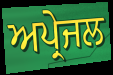
ਅਪ੍ਰੇਜਲ